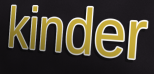
kinder